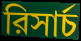
রিসার্চ